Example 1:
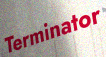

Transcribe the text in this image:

Terminator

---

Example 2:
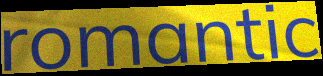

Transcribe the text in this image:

romantic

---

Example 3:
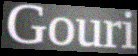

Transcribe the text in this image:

Gouri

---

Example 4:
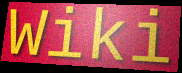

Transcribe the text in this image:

Wiki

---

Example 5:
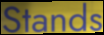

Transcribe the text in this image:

Stands